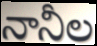
నానీల